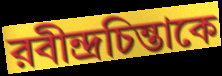
রবীন্দ্রচিন্তাকে